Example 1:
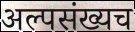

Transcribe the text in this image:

अल्पसंख्यच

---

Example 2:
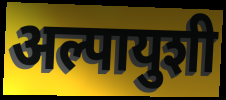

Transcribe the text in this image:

अल्पायुशी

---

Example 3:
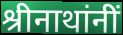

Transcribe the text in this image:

श्रीनाथांनीं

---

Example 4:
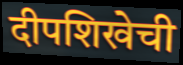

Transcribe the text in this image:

दीपशिखेची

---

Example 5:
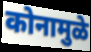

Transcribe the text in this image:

कोनामुळे